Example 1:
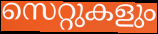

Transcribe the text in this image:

സെറ്റുകളും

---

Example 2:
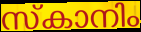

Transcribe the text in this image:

സ്‌കാനിം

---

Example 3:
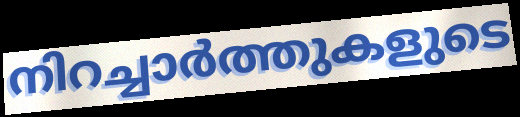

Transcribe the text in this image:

നിറച്ചാർത്തുകളുടെ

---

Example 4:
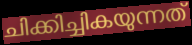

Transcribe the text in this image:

ചിക്കിച്ചികയുന്നത്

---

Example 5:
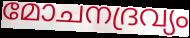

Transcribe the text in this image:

മോചനദ്രവ്യം